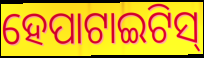
ହେପାଟାଇଟିସ୍